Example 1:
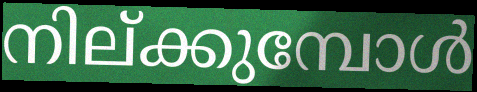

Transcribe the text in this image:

നില്ക്കുമ്പോൾ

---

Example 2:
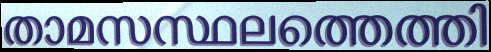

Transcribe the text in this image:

താമസസ്ഥലത്തെത്തി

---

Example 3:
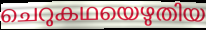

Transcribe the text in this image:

ചെറുകഥയെഴുതിയ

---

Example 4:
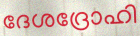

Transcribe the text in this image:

ദേശദ്രോഹി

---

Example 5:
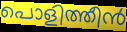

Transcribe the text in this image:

പൊളിത്തീൻ